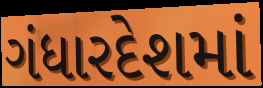
ગંધારદેશમાં